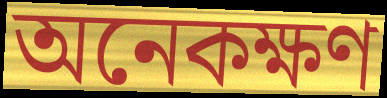
অনেকক্ষণ